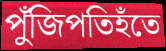
পুঁজিপতিহঁতে